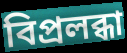
বিপ্রলব্ধা